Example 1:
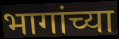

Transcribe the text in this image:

भागांच्या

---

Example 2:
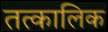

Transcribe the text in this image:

तत्कालिक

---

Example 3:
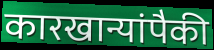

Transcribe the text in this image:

कारखान्यांपैकी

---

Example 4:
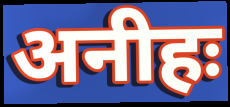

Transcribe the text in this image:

अनीहः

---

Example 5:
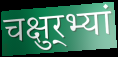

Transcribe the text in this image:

चक्षुर्भ्यां